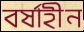
বর্ষাহীন